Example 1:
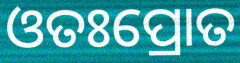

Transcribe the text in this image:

ଓତଃପ୍ରୋତ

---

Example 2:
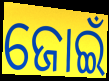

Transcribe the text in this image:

ଜୋଇଁ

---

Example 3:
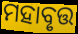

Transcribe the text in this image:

ମହାବୃତ୍ତ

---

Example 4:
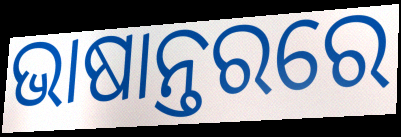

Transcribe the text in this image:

ଭାଷାନ୍ତରରେ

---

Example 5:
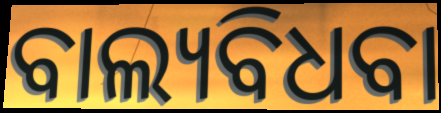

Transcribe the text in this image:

ବାଲ୍ୟବିଧବା